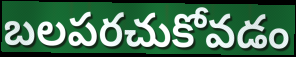
బలపరచుకోవడం